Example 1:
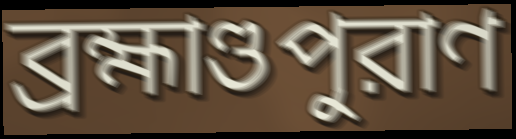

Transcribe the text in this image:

ব্রহ্মাণ্ডপুরাণ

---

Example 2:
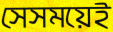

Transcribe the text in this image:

সেসময়েই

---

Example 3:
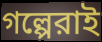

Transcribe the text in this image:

গল্পেরাই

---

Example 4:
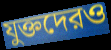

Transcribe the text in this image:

যুক্তদেরও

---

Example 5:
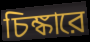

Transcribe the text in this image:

চিঙ্কারে